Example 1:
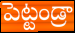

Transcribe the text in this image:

పెట్టండ్రా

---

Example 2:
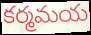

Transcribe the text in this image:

కర్మమయ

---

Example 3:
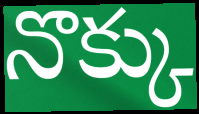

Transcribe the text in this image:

నొక్కు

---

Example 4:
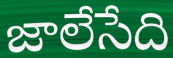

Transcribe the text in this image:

జాలేసేది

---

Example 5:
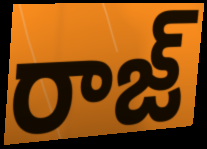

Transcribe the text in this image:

రాజ్